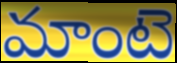
మాంటె